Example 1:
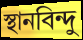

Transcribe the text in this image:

স্থানবিন্দু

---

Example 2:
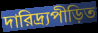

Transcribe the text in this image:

দারিদ্র্যপীড়িত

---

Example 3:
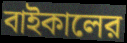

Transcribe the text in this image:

বাইকালের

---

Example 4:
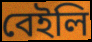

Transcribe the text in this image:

বেইলি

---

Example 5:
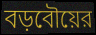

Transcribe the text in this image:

বড়বৌয়ের